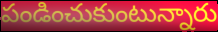
పండించుకుంటున్నారు